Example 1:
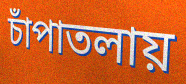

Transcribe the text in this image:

চাঁপাতলায়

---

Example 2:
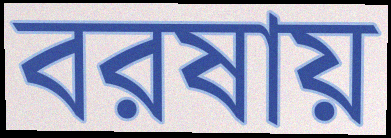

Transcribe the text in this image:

বরষায়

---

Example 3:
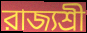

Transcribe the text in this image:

রাজ্যশ্রী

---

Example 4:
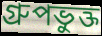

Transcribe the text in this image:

গ্রুপভুক্ত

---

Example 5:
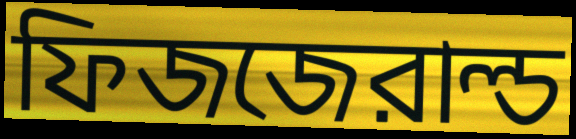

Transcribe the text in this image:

ফিজজেরাল্ড